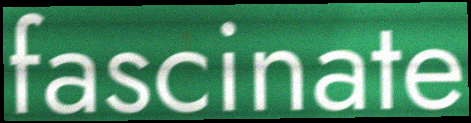
fascinate